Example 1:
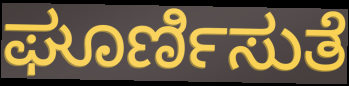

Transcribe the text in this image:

ಘೂರ್ಣಿಸುತೆ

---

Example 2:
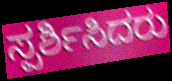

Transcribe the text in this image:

ಸ್ಪರ್ಶಿಸಿದರು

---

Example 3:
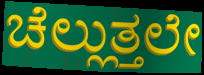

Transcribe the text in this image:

ಚೆಲ್ಲುತ್ತಲೇ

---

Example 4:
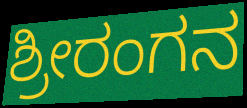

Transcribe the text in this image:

ಶ್ರೀರಂಗನ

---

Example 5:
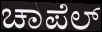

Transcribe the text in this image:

ಚಾಪೆಲ್